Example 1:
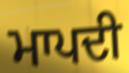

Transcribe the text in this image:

ਮਾਪਦੀ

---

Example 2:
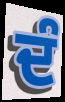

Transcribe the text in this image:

ਦੰ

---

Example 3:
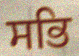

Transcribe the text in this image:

ਸਭਿ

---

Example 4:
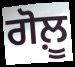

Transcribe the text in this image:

ਗੋਲ਼ੂ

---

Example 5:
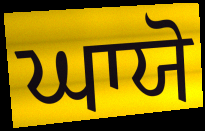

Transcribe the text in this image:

ਘਾਯੋ